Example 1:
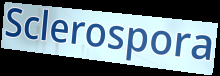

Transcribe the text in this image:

Sclerospora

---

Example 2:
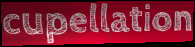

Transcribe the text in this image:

cupellation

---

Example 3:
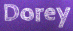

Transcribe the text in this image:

Dorey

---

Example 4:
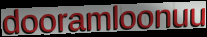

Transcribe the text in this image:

dooramloonuu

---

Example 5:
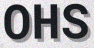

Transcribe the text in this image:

OHS